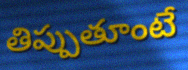
తిప్పుతూంటే